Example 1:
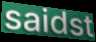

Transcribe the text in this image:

saidst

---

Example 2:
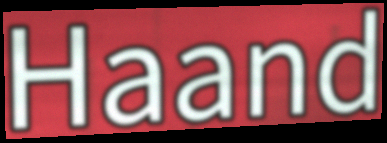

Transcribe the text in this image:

Haand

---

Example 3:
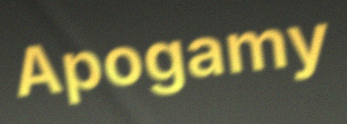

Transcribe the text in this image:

Apogamy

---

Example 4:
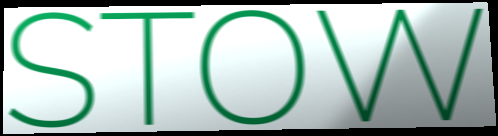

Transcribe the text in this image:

STOW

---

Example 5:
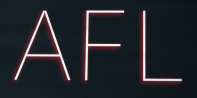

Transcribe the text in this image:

AFL